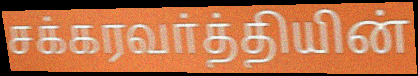
சக்கரவர்த்தியின்